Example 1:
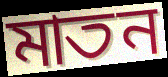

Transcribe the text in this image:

মাতন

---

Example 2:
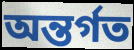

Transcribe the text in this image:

অন্তর্গত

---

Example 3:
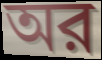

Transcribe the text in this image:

অর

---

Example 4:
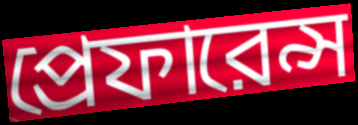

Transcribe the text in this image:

প্রেফারেন্স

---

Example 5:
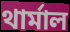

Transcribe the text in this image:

থার্মাল